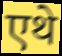
एथे